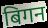
बिगन